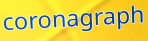
coronagraph